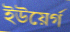
ইউয়ের্গ